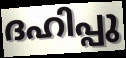
ദഹിപ്പു